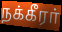
நக்கீரர்